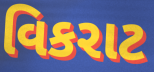
વિકરાટ